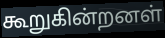
கூறுகின்றனள்